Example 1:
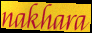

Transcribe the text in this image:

nakhara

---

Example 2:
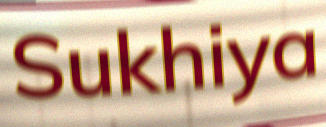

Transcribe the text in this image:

Sukhiya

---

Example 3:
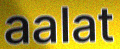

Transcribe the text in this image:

aalat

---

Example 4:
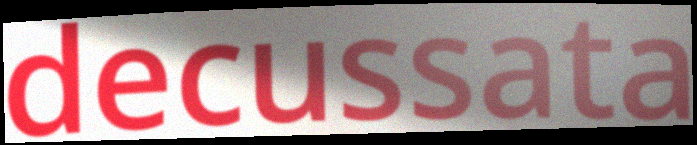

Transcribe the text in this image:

decussata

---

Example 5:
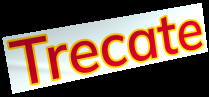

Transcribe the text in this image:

Trecate